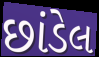
છાંડેલ